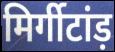
मिर्गीटांड़